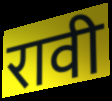
रावी